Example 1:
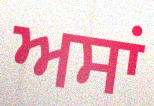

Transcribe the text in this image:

ਅਸਾਂ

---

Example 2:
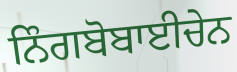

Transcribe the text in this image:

ਨਿੰਗਬੋਬਾਈਚੇਨ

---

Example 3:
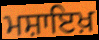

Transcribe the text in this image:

ਮਸ਼ਾਇਖ਼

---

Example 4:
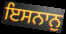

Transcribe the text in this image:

ਇਸਨਾਨੁ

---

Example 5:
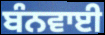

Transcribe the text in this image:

ਬੰਨਵਾਈ